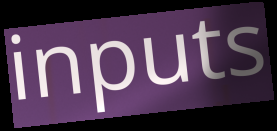
inputs